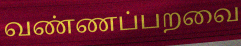
வண்ணப்பறவை